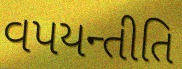
વપયન્તીતિ